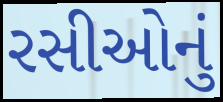
રસીઓનું